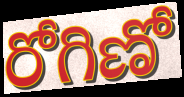
రోగిణో